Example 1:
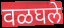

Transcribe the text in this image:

वळघले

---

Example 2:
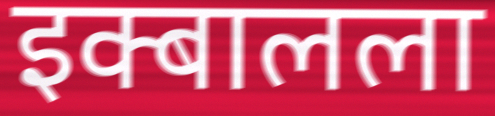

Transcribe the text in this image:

इक्बालला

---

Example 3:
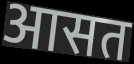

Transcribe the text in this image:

आसत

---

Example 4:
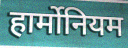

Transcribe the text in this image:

हार्मोनियम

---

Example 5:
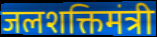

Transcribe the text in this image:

जलशक्तिमंत्री